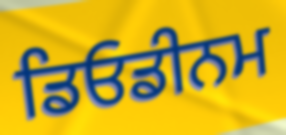
ਡਿਓਡੀਨਮ